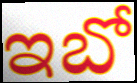
ఇబో